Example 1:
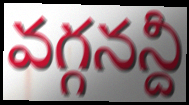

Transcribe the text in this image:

వగ్గనన్దీ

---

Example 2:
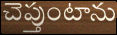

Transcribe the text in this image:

చెప్తుంటాను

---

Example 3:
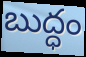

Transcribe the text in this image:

బుద్ధం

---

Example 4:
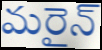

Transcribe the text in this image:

మరైన్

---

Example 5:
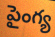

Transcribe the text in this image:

పైంగ్య